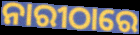
ନାରୀଠାରେ